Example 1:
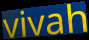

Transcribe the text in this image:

vivah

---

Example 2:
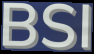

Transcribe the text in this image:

BSI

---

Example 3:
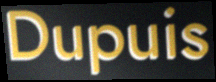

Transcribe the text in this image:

Dupuis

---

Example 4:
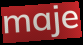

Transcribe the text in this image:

maje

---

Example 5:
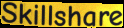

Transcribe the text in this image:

Skillshare